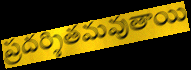
ప్రదర్శితమవుతాయి